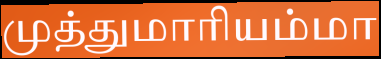
முத்துமாரியம்மா